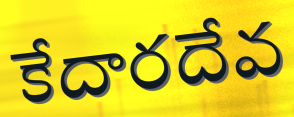
కేదారదేవ